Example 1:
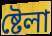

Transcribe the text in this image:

ষ্টেলা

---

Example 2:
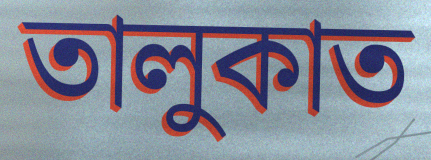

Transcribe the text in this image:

তালুকাত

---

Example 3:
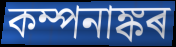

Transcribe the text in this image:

কম্পনাঙ্কৰ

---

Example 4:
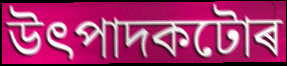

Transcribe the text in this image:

উৎপাদকটোৰ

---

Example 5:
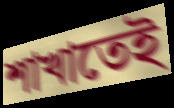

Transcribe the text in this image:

শাখাতেই